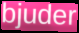
bjuder